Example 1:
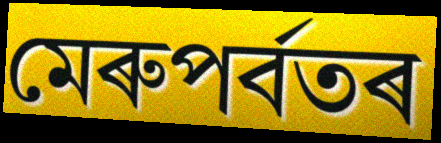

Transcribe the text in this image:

মেৰুপৰ্বতৰ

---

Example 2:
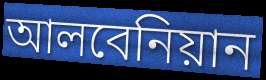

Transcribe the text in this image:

আলবেনিয়ান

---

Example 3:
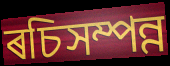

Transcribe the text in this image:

ৰচিসম্পন্ন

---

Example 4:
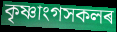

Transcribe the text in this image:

কৃষ্ণাংগসকলৰ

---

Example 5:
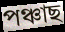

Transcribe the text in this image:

পঞ্চাছ